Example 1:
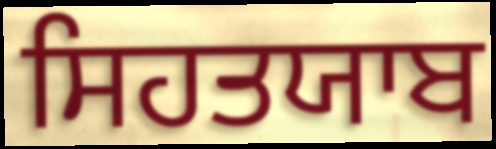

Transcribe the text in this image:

ਸਿਹਤਯਾਬ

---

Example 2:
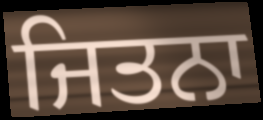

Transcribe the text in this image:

ਜਿਤਨਾ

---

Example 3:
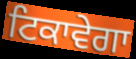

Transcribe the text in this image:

ਟਿਕਾਵੇਗਾ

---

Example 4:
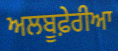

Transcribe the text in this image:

ਅਲਬੂਫ਼ੇਰੀਆ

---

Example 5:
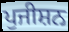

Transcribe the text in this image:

ਪੁਜੀਸ਼ਨ